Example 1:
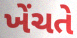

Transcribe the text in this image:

ખેંચતે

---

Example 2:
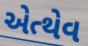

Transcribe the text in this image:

એત્થેવ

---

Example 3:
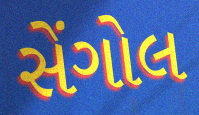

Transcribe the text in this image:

સેંગોલ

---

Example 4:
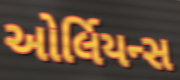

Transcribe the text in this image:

ઓર્લિયન્સ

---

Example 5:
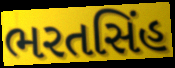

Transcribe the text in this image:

ભરતસિંહ